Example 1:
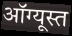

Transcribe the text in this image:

ऑग्यूस्त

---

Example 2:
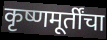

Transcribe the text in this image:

कृष्णमूर्तींचा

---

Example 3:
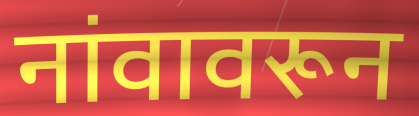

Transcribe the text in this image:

नांवावरून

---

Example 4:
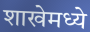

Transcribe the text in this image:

शाखेमध्ये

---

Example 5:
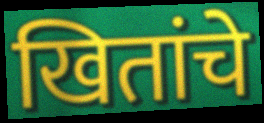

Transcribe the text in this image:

खितांचे